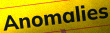
Anomalies